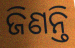
ଜିଣନ୍ତି